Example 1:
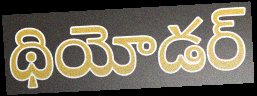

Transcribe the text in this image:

థియోడర్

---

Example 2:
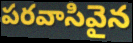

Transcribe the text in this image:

పరవాసివైన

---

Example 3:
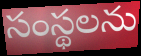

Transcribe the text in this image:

సంస్థలను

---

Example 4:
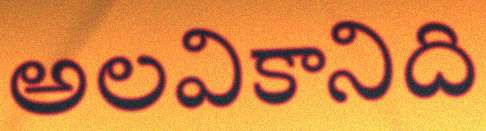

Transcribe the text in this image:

అలవికానిది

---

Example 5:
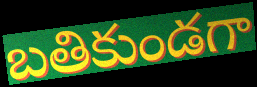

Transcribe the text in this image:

బతికుండగా